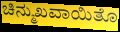
ಚಿನ್ಮುಖವಾಯಿತೊ